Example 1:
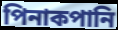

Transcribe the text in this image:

পিনাকপানি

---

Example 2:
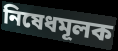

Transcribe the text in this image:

নিষেধমূলক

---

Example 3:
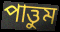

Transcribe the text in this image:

পাত্তুম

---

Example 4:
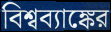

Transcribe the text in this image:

বিশ্বব্যাঙ্কের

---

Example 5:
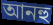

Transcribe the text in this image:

আনহু